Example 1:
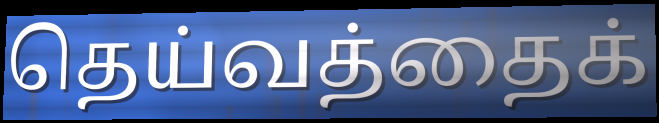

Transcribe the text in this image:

தெய்வத்தைக்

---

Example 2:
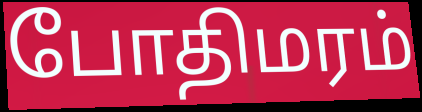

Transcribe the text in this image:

போதிமரம்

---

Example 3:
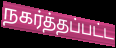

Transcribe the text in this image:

நகர்த்தப்பட்ட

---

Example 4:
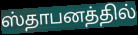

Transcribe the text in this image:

ஸ்தாபனத்தில்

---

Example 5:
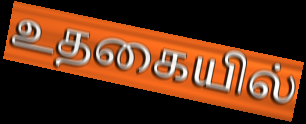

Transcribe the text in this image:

உதகையில்